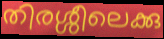
തിരശ്ശീലെക്കു